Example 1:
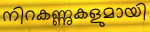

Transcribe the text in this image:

നിറകണ്ണുകളുമായി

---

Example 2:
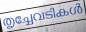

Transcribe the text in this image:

തൃച്ചേവടികൾ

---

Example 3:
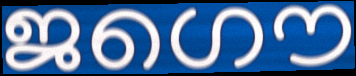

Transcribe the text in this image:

ജഗൌ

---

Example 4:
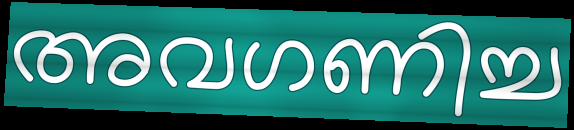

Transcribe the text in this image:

അവഗണിച്ച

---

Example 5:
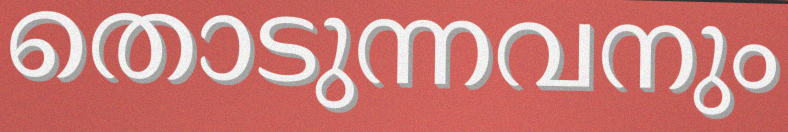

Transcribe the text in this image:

തൊടുന്നവനും